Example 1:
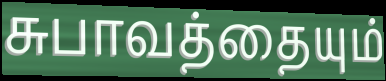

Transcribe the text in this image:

சுபாவத்தையும்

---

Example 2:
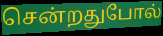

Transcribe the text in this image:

சென்றதுபோல்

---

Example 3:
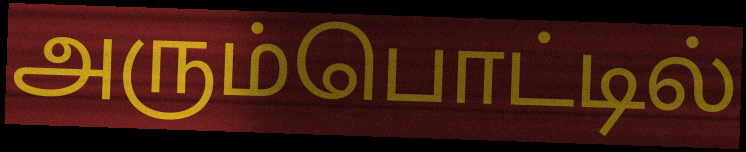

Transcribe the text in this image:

அரும்பொட்டில்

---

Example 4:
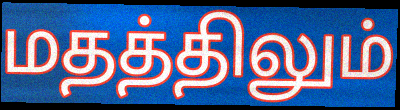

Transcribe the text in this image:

மதத்திலும்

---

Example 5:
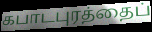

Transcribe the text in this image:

கபாடபுரத்தைப்